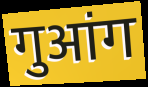
गुआंग